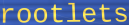
rootlets